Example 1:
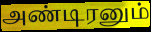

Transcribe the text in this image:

அண்டிரனும்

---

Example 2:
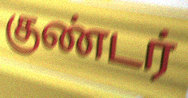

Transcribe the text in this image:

குண்டர்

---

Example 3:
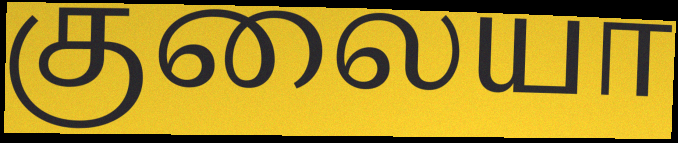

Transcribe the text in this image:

குலையா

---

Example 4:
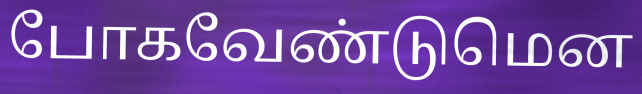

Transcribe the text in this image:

போகவேண்டுமென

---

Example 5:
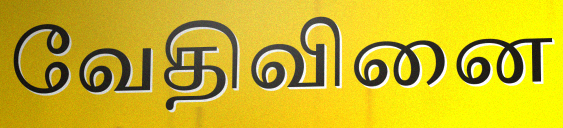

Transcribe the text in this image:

வேதிவினை